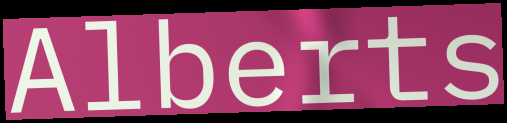
Alberts